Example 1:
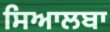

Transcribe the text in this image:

ਸਿਆਲਬਾ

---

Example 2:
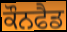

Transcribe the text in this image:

ਕੌਨਫੈਡ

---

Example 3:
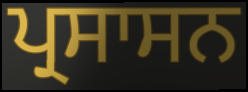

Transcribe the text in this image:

ਪ੍ਰਸਾਸਨ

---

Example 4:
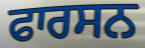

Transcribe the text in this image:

ਫਾਰਸਨ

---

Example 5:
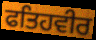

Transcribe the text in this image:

ਫਤਿਹਵੀਰ